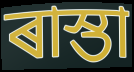
ৰাস্তা